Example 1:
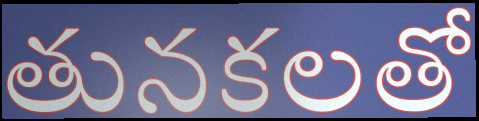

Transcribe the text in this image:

తునకలతో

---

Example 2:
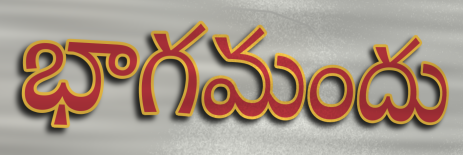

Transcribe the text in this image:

భాగమందు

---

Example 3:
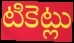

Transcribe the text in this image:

టికెట్లు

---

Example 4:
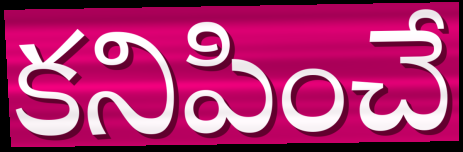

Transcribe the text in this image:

కనిపించే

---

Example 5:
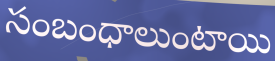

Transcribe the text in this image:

సంబంధాలుంటాయి